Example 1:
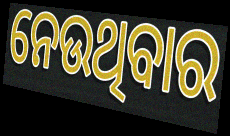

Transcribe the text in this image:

ନେଉଥିବାର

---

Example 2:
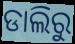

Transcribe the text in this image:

ଡାଲିରୁ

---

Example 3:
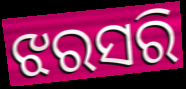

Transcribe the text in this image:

ଝରସରି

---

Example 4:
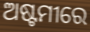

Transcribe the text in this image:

ଅଷ୍ଟମୀରେ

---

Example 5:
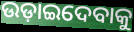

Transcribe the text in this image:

ଉଡ଼ାଇଦେବାକୁ